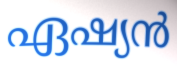
ഏഷ്യൻ